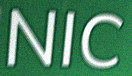
NIC